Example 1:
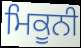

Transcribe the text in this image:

ਮਿਕੂਨੀ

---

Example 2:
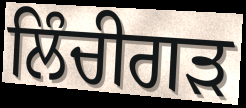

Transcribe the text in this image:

ਲਿੰਚੀਗੜ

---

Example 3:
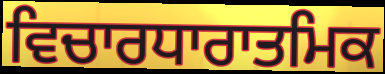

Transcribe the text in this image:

ਵਿਚਾਰਧਾਰਾਤਮਿਕ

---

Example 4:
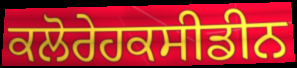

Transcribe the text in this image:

ਕਲੋਰੇਹਕਸੀਡੀਨ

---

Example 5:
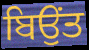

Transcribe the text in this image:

ਬਿਉਂਤ